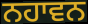
ਨਹਾਵਨ